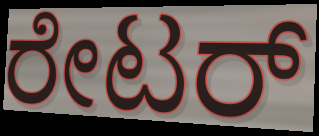
ರೇಟರ್